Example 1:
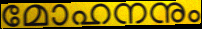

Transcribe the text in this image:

മോഹനനും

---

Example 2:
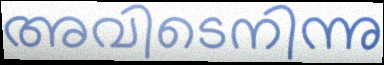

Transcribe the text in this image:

അവിടെനിന്നു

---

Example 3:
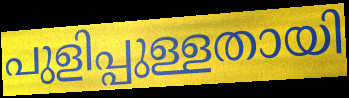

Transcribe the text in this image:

പുളിപ്പുള്ളതായി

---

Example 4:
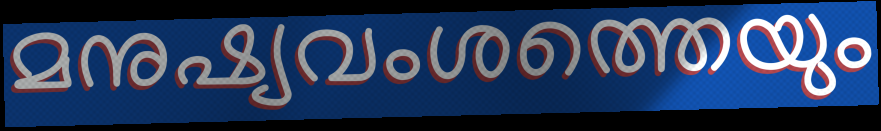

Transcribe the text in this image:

മനുഷ്യവംശത്തെയും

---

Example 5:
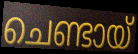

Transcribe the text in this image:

ചെണ്ടായ്